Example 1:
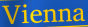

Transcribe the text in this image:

Vienna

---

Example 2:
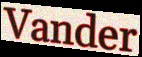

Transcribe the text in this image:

Vander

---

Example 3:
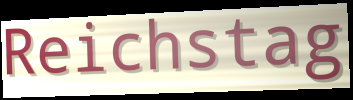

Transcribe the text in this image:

Reichstag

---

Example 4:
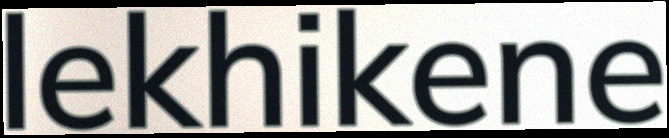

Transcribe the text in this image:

lekhikene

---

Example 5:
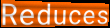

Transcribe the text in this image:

Reduces